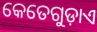
କେତେଗୁଡ଼ାଏ